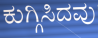
ಕುಗ್ಗಿಸಿದವು